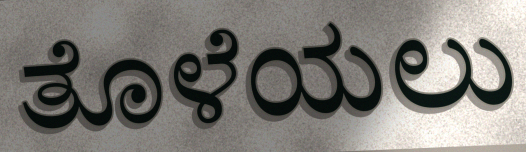
ತೊಳೆಯಲು